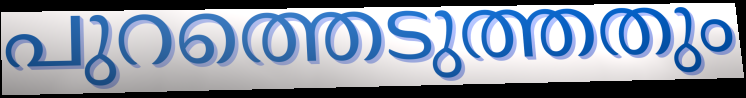
പുറത്തെടുത്തതും